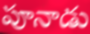
పూనాడు